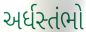
અર્ધસ્તંભો